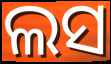
ଲସ